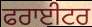
ਫਰਾਈਟਰ